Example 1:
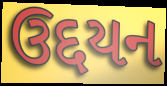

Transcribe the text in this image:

ઉદ્દયન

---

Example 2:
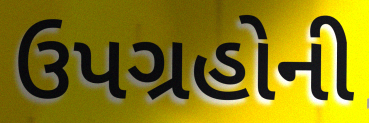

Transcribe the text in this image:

ઉપગ્રહોની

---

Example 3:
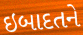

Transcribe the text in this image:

ઇબાદતને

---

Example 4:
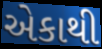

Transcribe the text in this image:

એકાથી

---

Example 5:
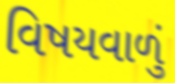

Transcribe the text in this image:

વિષયવાળું